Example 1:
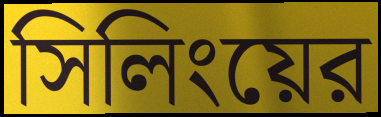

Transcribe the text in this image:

সিলিংয়ের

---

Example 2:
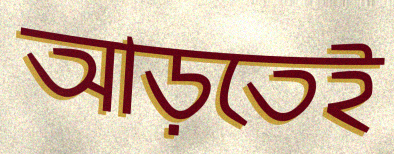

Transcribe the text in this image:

আড়তেই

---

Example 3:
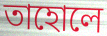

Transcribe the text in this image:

তাহোলে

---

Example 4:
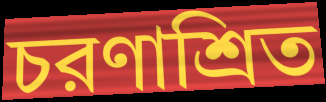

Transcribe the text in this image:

চরণাশ্রিত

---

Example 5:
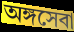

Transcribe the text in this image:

অঙ্গসেবা